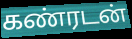
கண்ரடன்